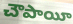
చౌపాయీ